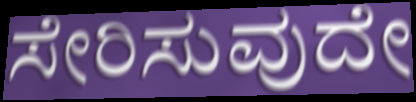
ಸೇರಿಸುವುದೇ